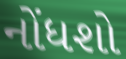
નોંધશો